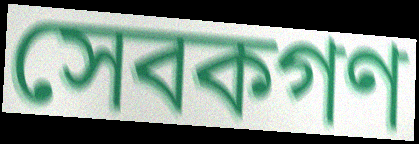
সেবকগণ